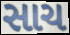
સાચ